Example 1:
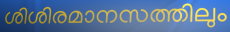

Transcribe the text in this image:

ശിശിരമാനസത്തിലും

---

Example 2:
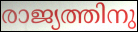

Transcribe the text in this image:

രാജ്യത്തിനു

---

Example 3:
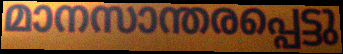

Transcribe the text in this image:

മാനസാന്തരപ്പെട്ടു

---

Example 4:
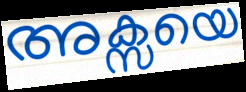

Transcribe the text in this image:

അക്സയെ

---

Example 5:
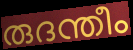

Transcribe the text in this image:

രുദന്തീം